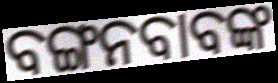
ବଙ୍ଗନବାବଙ୍କ